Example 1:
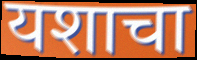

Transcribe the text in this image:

यशाचा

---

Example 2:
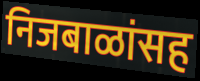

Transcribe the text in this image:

निजबाळांसह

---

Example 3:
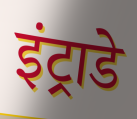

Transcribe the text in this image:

इंट्राडे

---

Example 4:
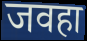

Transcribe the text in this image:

जवहा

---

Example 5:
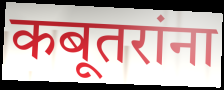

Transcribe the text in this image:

कबूतरांना